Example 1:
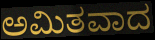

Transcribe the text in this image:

ಅಮಿತವಾದ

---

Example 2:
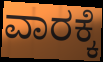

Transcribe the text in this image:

ವಾರಕ್ಕೆ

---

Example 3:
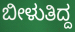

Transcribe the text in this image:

ಬೀಳುತಿದ್ದ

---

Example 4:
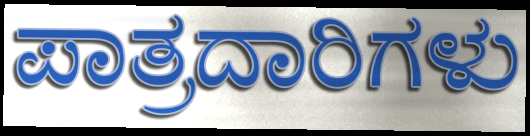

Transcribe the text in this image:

ಪಾತ್ರದಾರಿಗಳು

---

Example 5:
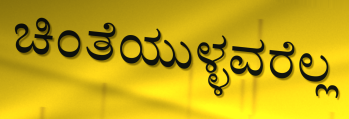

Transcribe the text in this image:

ಚಿಂತೆಯುಳ್ಳವರೆಲ್ಲ